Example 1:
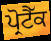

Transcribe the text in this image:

ਪ੍ਰੋਟੈੱਕ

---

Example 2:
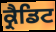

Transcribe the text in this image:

ਕ੍ਰੈਡਿਟ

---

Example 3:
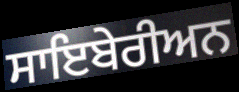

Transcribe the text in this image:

ਸਾਇਬੇਰੀਅਨ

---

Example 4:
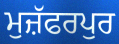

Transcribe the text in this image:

ਮੁਜ਼ੱਫਰਪੁਰ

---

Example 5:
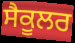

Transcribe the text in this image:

ਸੈਕੂਲਰ